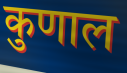
कुणाल